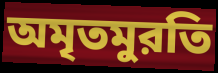
অমৃতমুরতি